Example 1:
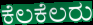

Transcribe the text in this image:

ಕೆಲಕೆಲರು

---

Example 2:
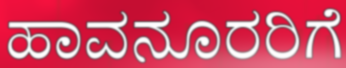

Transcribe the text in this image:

ಹಾವನೂರರಿಗೆ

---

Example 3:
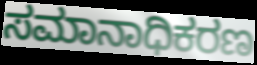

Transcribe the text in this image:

ಸಮಾನಾಧಿಕರಣ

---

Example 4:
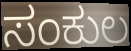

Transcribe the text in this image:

ಸಂಕುಲ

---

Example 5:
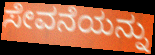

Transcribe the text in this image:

ಸೇವನೆಯನ್ನು